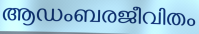
ആഡംബരജീവിതം